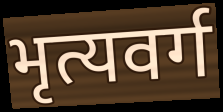
भृत्यवर्ग